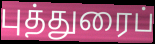
புத்துரைப்